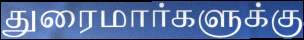
துரைமார்களுக்கு